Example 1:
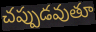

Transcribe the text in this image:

చప్పుడవుతూ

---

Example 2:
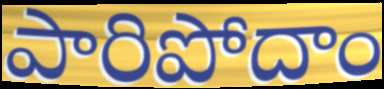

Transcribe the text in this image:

పారిపోదాం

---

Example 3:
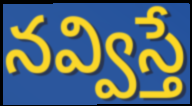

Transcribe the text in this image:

నవ్విస్తే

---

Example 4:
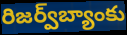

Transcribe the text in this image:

రిజర్వ్‌బ్యాంకు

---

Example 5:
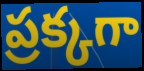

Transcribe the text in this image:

ప్రక్కగా